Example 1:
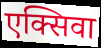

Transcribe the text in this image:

एक्सिवा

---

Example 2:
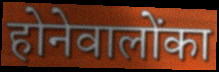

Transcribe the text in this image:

होनेवालोंका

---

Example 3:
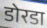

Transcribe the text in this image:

डोरडा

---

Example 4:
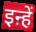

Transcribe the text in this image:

इऩ्हें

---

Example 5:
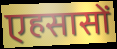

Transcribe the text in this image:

एहसासों